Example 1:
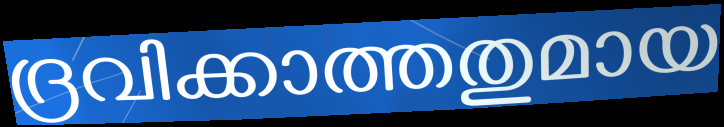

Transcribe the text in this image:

ദ്രവിക്കാത്തതുമായ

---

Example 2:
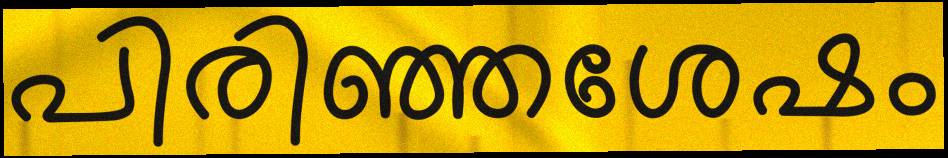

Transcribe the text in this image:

പിരിഞ്ഞശേഷം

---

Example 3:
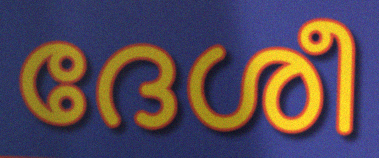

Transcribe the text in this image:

ദേശീ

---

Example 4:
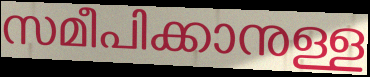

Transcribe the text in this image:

സമീപിക്കാനുള്ള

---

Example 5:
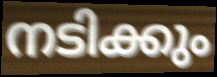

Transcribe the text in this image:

നടിക്കും